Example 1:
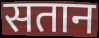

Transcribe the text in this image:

सतान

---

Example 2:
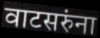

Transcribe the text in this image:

वाटसरुंना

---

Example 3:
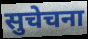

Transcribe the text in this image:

सुचेचना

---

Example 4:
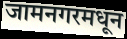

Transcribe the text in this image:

जामनगरमधून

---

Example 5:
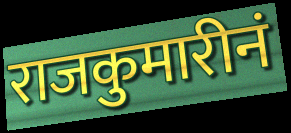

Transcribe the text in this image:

राजकुमारीनं